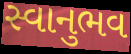
સ્વાનુભવ